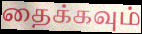
தைக்கவும்